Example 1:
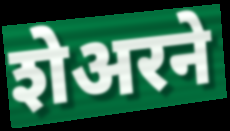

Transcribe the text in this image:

शेअरने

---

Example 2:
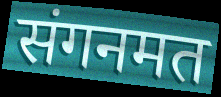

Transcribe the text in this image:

संगनमत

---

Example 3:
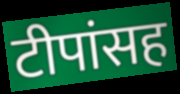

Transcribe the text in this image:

टीपांसह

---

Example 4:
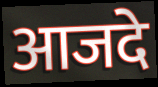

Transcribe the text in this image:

आजदे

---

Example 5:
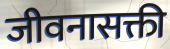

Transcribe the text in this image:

जीवनासक्ती